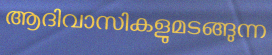
ആദിവാസികളുമടങ്ങുന്ന